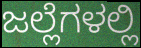
ಜಲ್ಲೆಗಳಲ್ಲಿ